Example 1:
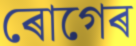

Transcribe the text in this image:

ৰোগেৰ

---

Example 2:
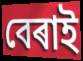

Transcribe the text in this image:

বেৰাই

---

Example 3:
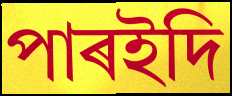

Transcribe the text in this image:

পাৰইদি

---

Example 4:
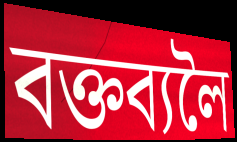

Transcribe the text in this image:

বক্তব্যলৈ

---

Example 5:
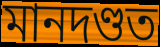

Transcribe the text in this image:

মানদণ্ডত